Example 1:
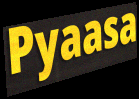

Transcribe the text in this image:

Pyaasa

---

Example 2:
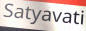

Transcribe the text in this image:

Satyavati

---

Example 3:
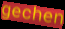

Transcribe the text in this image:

gechen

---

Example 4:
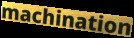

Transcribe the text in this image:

machination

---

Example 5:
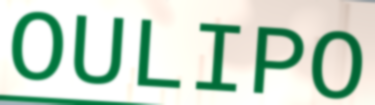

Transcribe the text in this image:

OULIPO